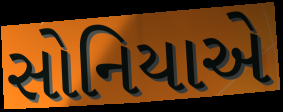
સોનિયાએ